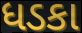
ધડકા